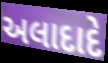
અલાદાદે